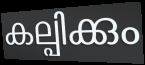
കല്പിക്കും